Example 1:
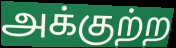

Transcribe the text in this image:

அக்குற்ற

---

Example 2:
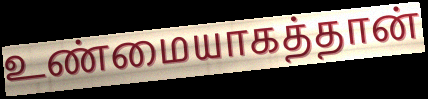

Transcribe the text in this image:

உண்மையாகத்தான்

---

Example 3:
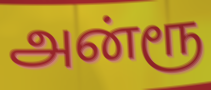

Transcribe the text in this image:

அன்ரூ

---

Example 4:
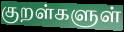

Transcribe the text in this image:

குறள்களுள்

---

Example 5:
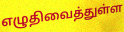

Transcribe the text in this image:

எழுதிவைத்துள்ள